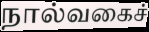
நால்வகைச்